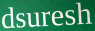
dsuresh